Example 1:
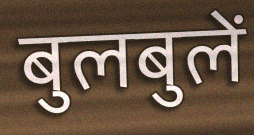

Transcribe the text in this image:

बुलबुलें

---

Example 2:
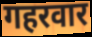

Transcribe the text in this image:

गहरवार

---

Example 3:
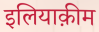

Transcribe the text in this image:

इलियाक़ीम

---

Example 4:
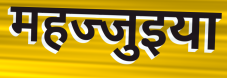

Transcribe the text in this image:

महज्जुइया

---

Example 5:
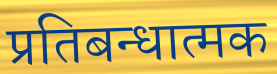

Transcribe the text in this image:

प्रतिबन्धात्मक